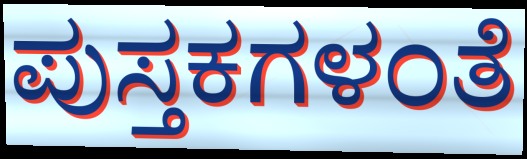
ಪುಸ್ತಕಗಳಂತೆ